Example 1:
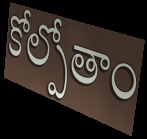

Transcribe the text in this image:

కోల్పోతాం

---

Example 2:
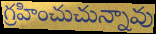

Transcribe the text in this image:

గ్రహించుచున్నావు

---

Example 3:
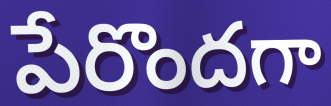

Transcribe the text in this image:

పేరొందగా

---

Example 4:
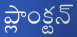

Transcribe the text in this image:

ప్లాంక్టన్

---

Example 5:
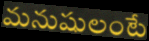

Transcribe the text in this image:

మనుషులంటే